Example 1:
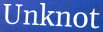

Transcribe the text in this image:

Unknot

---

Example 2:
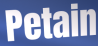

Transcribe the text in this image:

Petain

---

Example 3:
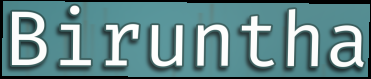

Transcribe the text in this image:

Biruntha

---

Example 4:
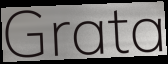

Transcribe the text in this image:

Grata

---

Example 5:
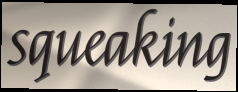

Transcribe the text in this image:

squeaking